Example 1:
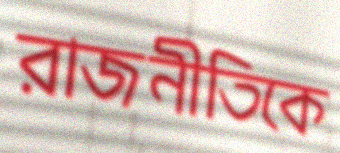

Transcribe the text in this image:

রাজনীতিকে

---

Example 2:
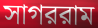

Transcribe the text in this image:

সাগররাম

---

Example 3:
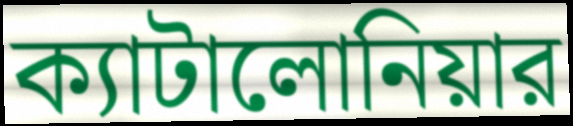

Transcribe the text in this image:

ক্যাটালোনিয়ার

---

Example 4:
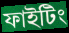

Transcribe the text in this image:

ফাইটিং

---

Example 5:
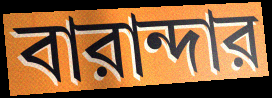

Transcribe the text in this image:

বারান্দার